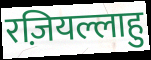
रज़ियल्लाहु